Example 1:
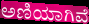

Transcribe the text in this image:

ಅಣಿಯಾಗಿವೆ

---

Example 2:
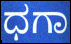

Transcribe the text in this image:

ಧಗಾ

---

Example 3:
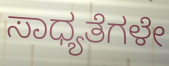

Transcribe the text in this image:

ಸಾಧ್ಯತೆಗಳೇ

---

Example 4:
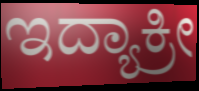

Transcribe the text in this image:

ಇದ್ಯಾಕ್ರೀ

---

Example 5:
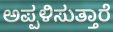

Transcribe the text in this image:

ಅಪ್ಪಳಿಸುತ್ತಾರೆ